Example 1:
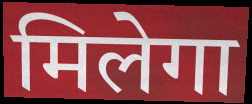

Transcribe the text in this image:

मिलेगा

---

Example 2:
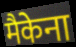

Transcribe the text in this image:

मैकेना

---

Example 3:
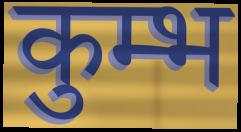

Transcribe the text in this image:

कुम्भ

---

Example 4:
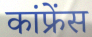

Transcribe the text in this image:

कांफ्रेंस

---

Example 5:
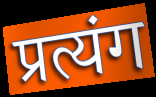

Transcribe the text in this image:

प्रत्यंग